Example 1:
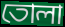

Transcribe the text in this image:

তোলা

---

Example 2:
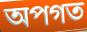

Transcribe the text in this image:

অপগত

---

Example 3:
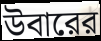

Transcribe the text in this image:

উবারের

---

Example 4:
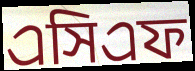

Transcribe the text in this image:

এসিএফ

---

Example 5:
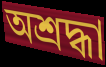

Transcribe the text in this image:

অশ্রদ্ধা